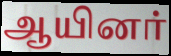
ஆயினர்